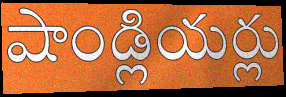
షాండ్లియర్లు